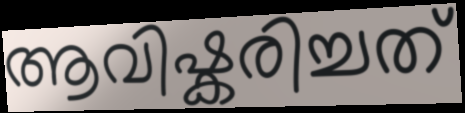
ആവിഷ്കരിച്ചത്